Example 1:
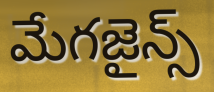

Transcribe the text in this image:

మేగజైన్స్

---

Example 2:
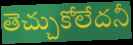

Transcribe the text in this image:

తెచ్చుకోలేదనీ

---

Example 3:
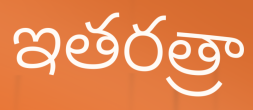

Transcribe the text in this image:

ఇతరత్రా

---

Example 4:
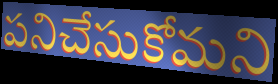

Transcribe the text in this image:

పనిచేసుకోమని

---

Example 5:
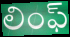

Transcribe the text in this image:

లింఫ్